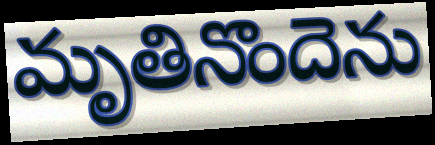
మృతినొందెను